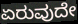
ಏರುವುದೇ